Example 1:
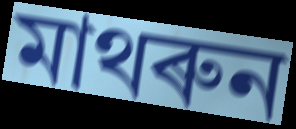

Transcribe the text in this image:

মাথৰুন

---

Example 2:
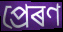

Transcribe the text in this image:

প্ৰেৰণ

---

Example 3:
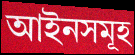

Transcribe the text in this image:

আইনসমূহ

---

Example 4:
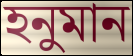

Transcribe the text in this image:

হনুমান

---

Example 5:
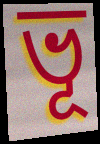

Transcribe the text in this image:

ভূ